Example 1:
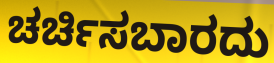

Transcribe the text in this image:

ಚರ್ಚಿಸಬಾರದು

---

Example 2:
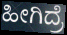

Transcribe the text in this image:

ಹೀಗಿದ್ರೆ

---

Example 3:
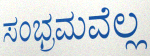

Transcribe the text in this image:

ಸಂಭ್ರಮವೆಲ್ಲ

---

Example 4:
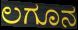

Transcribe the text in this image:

ಲಗೂನ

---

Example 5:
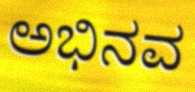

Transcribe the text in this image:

ಅಭಿನವ